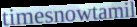
timesnowtamil